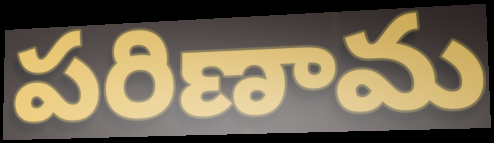
పరిణామ